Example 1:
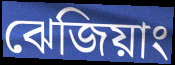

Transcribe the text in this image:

ঝেজিয়াং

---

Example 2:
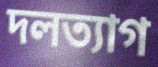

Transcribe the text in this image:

দলত্যাগ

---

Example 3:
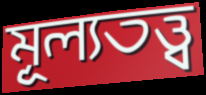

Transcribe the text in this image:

মূল্যতত্ত্ব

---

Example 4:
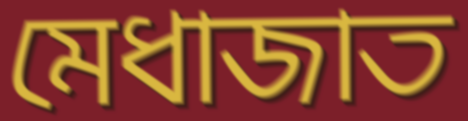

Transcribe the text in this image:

মেধাজাত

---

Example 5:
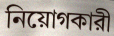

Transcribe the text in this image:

নিয়োগকারী